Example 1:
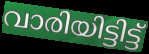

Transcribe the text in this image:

വാരിയിട്ടിട്ട്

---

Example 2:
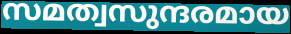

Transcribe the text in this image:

സമത്വസുന്ദരമായ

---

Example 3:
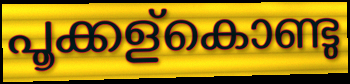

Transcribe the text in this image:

പൂക്കള്കൊണ്ടു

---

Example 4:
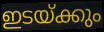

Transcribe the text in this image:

ഇടയ്ക്കും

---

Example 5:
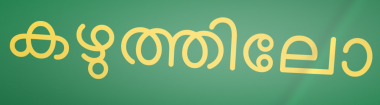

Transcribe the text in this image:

കഴുത്തിലോ